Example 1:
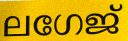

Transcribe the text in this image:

ലഗേജ്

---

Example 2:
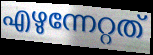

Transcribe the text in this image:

എഴുന്നേറ്റത്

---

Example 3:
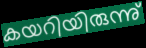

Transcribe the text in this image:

കയറിയിരുന്നു്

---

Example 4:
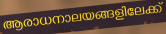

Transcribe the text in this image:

ആരാധനാലയങ്ങളിലേക്ക്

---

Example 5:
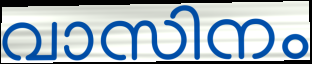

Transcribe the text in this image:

വാസിനം